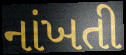
નાંખતી